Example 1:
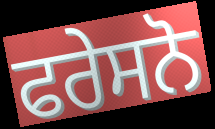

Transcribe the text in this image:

ਫਰੇਸਨੋ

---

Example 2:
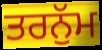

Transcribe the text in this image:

ਤਰਨੁੱਮ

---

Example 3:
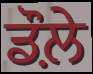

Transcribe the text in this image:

ਡੌਲ਼ੇ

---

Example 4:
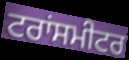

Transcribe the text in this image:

ਟਰਾਂਸਮੀਟਰ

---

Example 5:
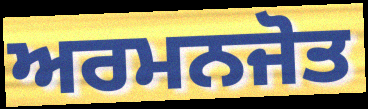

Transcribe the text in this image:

ਅਰਮਨਜੋਤ